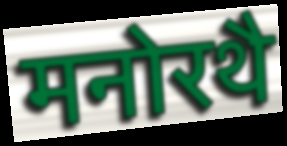
मनोरथै